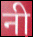
नी